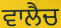
ਵਾਲੈਚ